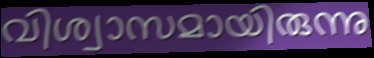
വിശ്വാസമായിരുന്നു